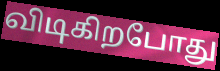
விடிகிறபோது